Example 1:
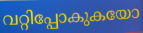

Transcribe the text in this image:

വറ്റിപ്പോകുകയോ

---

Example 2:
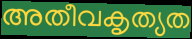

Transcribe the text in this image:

അതീവകൃത്യത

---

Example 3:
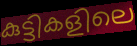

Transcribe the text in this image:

കുട്ടികളിലെ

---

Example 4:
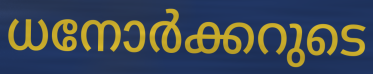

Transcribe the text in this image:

ധനോർക്കറുടെ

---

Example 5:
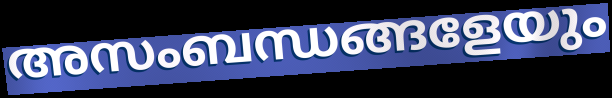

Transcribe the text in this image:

അസംബന്ധങ്ങളേയും